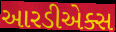
આરડીએક્સ